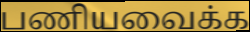
பணியவைக்க